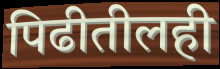
पिढीतीलही